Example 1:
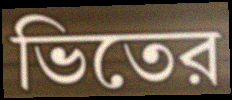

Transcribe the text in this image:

ভিতের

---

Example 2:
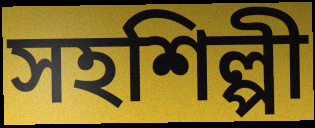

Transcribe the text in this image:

সহশিল্পী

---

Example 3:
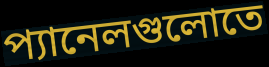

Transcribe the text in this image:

প্যানেলগুলোতে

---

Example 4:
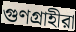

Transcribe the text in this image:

গুণগ্রাহীরা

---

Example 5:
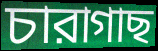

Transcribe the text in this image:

চারাগাছ